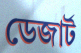
ডেজাৰ্ট